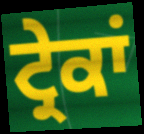
ਟ੍ਰੇਕਾਂ